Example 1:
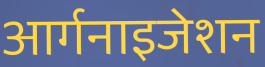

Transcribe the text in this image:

आर्गनाइजेशन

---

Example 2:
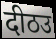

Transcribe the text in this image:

दीठउ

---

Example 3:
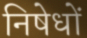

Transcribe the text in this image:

निषेधों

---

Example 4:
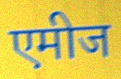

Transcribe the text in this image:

एमीज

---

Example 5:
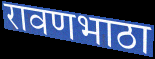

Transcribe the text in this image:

रावणभाठा